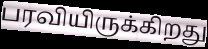
பரவியிருக்கிறது